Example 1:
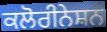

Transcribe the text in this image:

ਕਲੋਰੀਨੇਸ਼ਨ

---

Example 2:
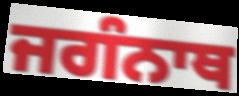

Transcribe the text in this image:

ਜਗੰਨਾਥ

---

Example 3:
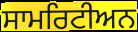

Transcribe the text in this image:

ਸਾਮਰਿਟੀਅਨ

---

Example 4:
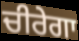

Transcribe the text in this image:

ਚੀਰੇਗਾ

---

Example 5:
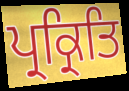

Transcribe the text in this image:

ਪ੍ਰਕ੍ਰਿਤਿ